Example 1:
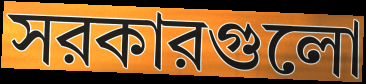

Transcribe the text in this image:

সরকারগুলো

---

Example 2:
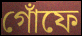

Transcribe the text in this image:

গোঁফে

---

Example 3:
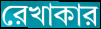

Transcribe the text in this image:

রেখাকার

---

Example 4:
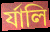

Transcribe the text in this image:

র্যালি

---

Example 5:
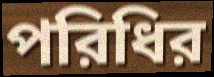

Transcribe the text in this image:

পরিধির